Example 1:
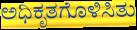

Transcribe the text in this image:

ಅಧಿಕೃತಗೊಳಿಸಿತು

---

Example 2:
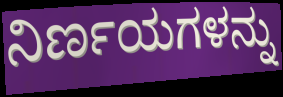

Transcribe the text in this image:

ನಿರ್ಣಯಗಳನ್ನು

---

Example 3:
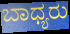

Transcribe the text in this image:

ಬಾಧ್ಯರು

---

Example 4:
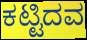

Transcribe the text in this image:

ಕಟ್ಟಿದವ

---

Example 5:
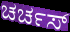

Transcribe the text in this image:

ಚರ್ಚಸ್